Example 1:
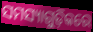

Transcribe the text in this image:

ସମସ୍ୟାଗୁଡ଼ିକରେ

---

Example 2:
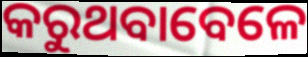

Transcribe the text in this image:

କରୁଥବାବେଳେ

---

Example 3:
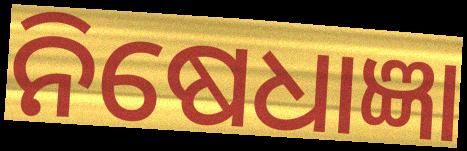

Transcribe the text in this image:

ନିଷେଧାଜ୍ଞା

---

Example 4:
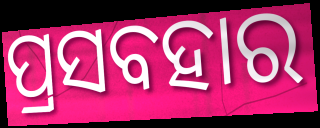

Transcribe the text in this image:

ପ୍ରସବହାର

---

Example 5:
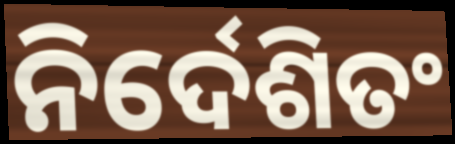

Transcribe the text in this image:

ନିର୍ଦେଶିତଂ